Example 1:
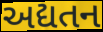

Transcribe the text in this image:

અદ્યતન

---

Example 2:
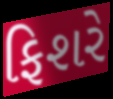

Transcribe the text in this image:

ફિશરે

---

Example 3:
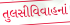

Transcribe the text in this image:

તુલસીવિવાહનાં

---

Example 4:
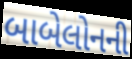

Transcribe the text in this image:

બાબેલોનની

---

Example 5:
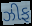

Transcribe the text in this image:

ઝીફ